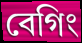
বেগিং